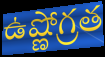
ఉష్ణోగ్రత